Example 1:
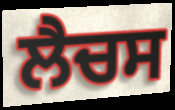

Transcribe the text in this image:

ਲੈਚਸ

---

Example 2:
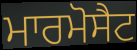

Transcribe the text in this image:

ਮਾਰਮੋਸੈਟ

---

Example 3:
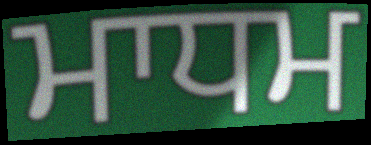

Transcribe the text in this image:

ਮਾਧਮ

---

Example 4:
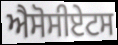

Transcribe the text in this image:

ਐਸੋਸੀਏਟਸ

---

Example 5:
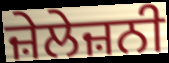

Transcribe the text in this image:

ਜ਼ੇਲੇਜ਼ਨੀ